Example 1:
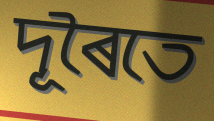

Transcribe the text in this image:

দূৰৈতে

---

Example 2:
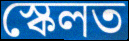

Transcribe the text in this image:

স্কেলত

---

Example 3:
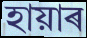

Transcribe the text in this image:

হায়াৰ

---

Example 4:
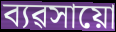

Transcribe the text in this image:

ব্যৱসায়ো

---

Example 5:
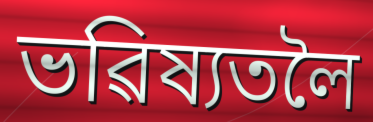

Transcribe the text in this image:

ভৱিষ্যতলৈ